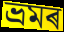
ভ্ৰমৰ